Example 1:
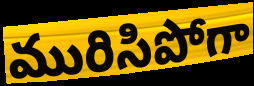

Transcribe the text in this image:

మురిసిపోగా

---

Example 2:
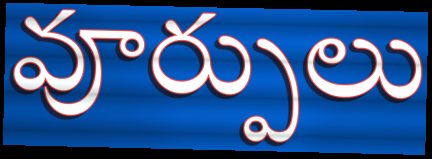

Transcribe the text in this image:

వూర్పులు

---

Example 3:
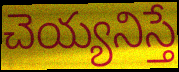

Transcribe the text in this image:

చెయ్యనిస్తే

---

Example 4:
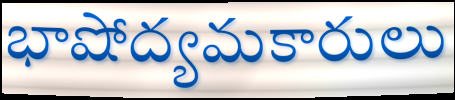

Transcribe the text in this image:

భాషోద్యమకారులు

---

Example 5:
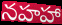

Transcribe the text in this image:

నహహా